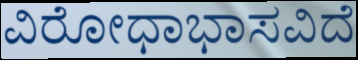
ವಿರೋಧಾಭಾಸವಿದೆ